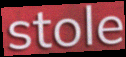
stole